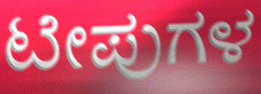
ಟೇಪುಗಳ